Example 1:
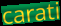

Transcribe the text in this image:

carati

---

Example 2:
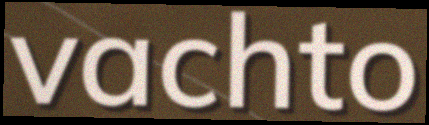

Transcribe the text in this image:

vachto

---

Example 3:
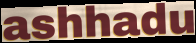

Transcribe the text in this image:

ashhadu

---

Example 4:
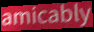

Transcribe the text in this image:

amicably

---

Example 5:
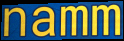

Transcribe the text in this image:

namm